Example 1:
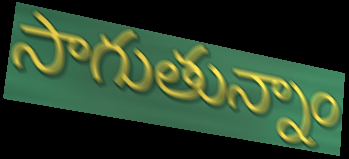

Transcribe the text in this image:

సాగుతున్నాం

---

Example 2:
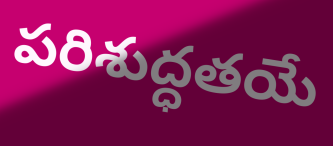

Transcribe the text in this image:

పరిశుద్ధతయే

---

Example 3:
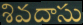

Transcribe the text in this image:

శివదాసు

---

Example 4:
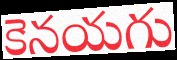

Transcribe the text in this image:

కెనయగు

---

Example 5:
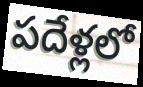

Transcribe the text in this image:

పదేళ్లలో